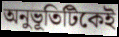
অনুভূতিটিকেই